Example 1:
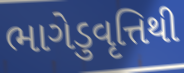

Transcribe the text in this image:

ભાગેડુવૃત્તિથી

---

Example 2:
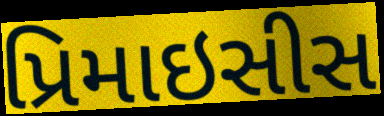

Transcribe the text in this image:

પ્રિમાઇસીસ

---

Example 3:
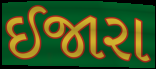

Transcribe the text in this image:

ઈજારા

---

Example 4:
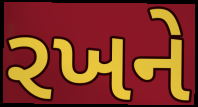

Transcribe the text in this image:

રખને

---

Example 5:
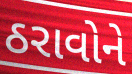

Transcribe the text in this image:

ઠરાવોને